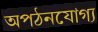
অপঠনযোগ্য